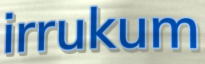
irrukum